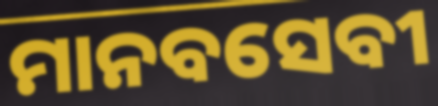
ମାନବସେବୀ